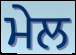
ਮੇਲ